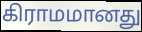
கிராமமானது